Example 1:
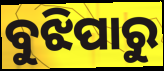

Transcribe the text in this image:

ବୁଝିପାରୁ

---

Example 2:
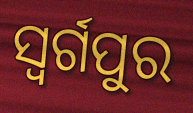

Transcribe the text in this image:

ସ୍ଵର୍ଗପୁର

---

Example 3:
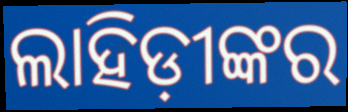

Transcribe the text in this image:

ଲାହିଡ଼ୀଙ୍କର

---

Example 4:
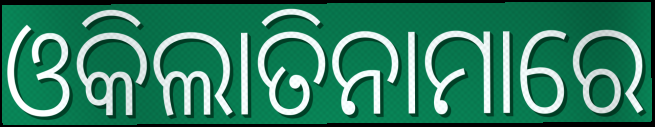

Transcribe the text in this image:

ଓକିଲାତିନାମାରେ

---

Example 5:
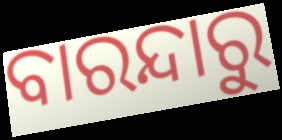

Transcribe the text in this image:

ବାରନ୍ଦାରୁ